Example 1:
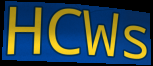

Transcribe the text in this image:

HCWs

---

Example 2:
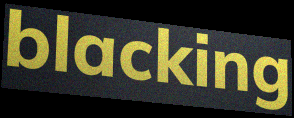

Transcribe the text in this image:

blacking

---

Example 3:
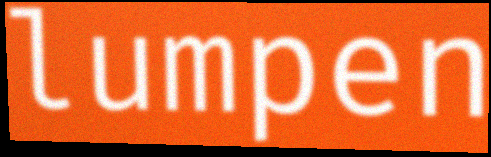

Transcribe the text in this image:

lumpen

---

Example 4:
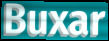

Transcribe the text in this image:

Buxar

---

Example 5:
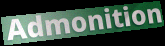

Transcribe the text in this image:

Admonition